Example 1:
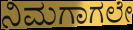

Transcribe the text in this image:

ನಿಮಗಾಗಲೇ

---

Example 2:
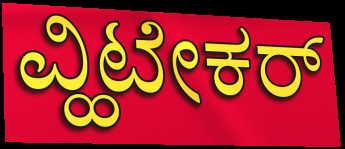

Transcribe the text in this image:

ವ್ಹಿಟೇಕರ್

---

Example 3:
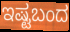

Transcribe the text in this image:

ಇಷ್ಟಬಂದ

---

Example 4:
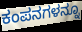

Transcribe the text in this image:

ಕಂಪನಗಳನ್ನೂ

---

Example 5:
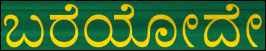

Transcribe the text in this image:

ಬರೆಯೋದೇ